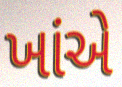
ખાંએ